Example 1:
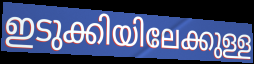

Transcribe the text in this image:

ഇടുക്കിയിലേക്കുള്ള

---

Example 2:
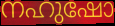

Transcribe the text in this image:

നഹുഷോ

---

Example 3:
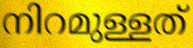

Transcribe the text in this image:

നിറമുള്ളത്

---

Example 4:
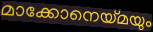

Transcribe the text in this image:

മാക്കോനെയ്മയും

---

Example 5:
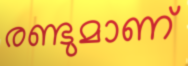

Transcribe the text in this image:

രണ്ടുമാണ്